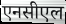
एनसीएल